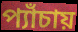
প্যাঁচায়